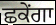
ਛਕੇਂਗਾ